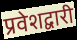
प्रवेशद्वारी